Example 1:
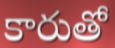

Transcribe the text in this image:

కారుతో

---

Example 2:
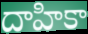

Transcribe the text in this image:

దాహికా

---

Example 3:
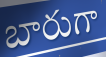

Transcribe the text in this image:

బారుగా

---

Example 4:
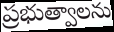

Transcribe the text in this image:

ప్రభుత్వాలను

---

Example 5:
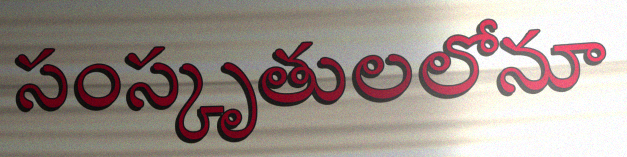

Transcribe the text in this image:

సంస్కృతులలోనూ